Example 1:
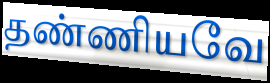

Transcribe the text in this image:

தண்ணியவே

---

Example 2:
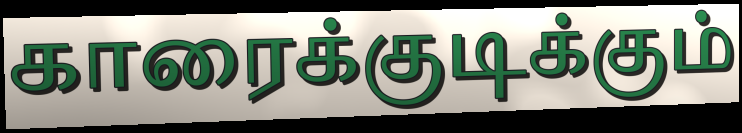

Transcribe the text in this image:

காரைக்குடிக்கும்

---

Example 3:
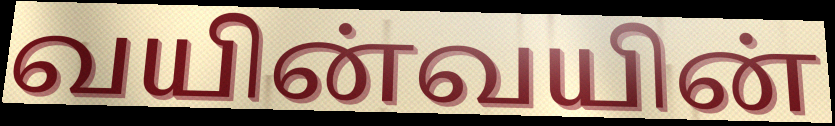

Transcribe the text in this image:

வயின்வயின்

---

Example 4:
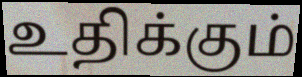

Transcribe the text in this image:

உதிக்கும்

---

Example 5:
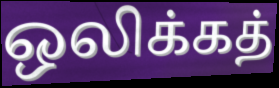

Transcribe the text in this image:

ஒலிக்கத்